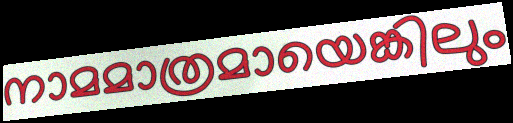
നാമമാത്രമായെങ്കിലും